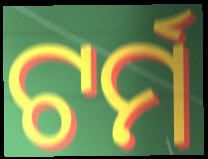
ଟର୍ମ